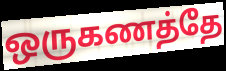
ஒருகணத்தே